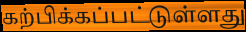
கற்பிக்கப்பட்டுள்ளது